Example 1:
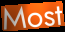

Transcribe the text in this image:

Most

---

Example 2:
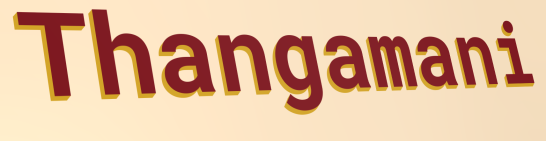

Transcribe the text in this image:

Thangamani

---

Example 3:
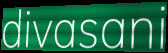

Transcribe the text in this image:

divasani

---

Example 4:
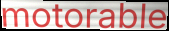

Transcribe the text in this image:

motorable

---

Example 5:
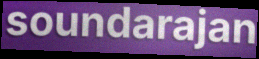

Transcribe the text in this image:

soundarajan